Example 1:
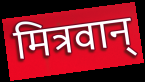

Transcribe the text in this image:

मित्रवान्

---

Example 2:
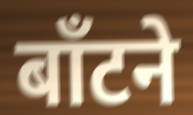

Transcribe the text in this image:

बाँटने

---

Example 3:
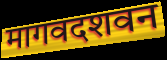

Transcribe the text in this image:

मागवदशवन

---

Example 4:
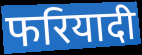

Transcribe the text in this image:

फरियादी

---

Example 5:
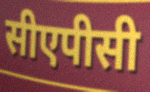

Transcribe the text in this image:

सीएपीसी